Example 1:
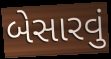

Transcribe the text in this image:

બેસારવું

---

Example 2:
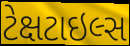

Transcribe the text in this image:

ટેક્ષટાઇલ્સ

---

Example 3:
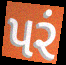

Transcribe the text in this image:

પરં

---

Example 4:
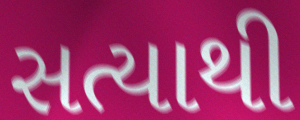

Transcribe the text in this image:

સત્યાથી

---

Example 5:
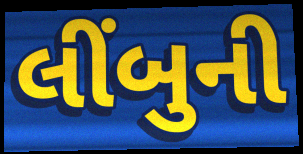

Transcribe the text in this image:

લીંબુની